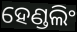
ହେଣ୍ଡଲିଂ